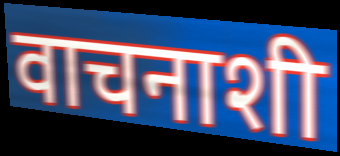
वाचनाशी